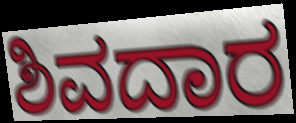
ಶಿವದಾರ